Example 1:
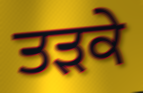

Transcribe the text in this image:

ਤੜਕੇ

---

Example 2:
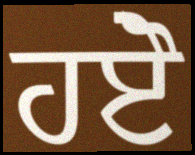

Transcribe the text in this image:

ਹਏੋ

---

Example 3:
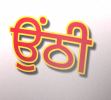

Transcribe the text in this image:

ਉਂਠੀ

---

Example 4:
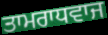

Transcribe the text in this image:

ਤਾਮਰਾਧਵਾਜ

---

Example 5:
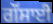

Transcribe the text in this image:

ਗੌਂਸਾਈ